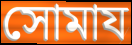
সোমায